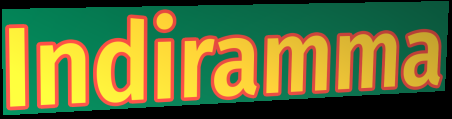
Indiramma